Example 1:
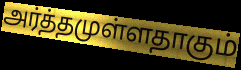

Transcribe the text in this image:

அர்த்தமுள்ளதாகும்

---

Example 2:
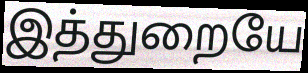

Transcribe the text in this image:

இத்துறையே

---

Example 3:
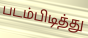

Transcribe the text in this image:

படம்பிடித்து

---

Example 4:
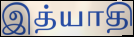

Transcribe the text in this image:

இத்யாதி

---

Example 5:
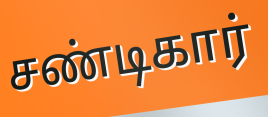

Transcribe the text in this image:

சண்டிகார்